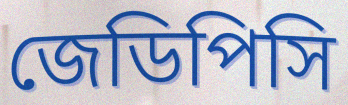
জেডিপিসি